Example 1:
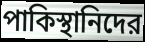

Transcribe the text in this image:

পাকিস্থানিদের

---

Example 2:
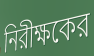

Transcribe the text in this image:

নিরীক্ষকের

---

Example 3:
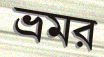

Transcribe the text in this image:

ভ্রমর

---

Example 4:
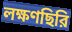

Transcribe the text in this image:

লক্ষণছিরি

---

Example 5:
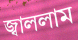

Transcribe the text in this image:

জ্বাললাম